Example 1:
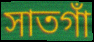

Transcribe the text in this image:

সাতগাঁ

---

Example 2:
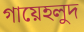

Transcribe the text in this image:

গায়েহলুদ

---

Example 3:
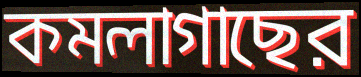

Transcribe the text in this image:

কমলাগাছের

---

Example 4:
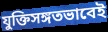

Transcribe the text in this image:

যুক্তিসঙ্গতভাবেই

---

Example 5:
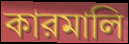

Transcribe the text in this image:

কারমালি